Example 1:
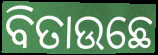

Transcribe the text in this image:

ବିତାଉଛେ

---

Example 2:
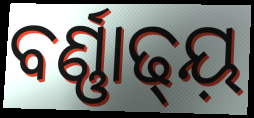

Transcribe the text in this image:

ବର୍ଣ୍ଣାଢ୍ୟ଼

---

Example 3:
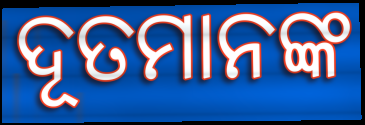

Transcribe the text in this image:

ଦୂତମାନଙ୍କ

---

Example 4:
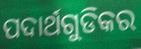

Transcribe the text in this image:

ପଦାର୍ଥଗୁଡିକର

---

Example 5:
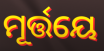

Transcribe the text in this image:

ମୂର୍ତ୍ତୟେ